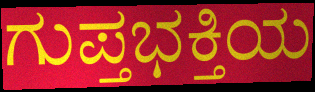
ಗುಪ್ತಭಕ್ತಿಯ